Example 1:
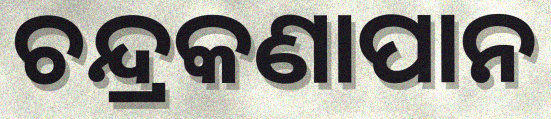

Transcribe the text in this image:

ଚନ୍ଦ୍ରକଣାପାନ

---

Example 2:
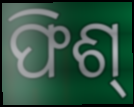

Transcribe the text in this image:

ଫିଶ୍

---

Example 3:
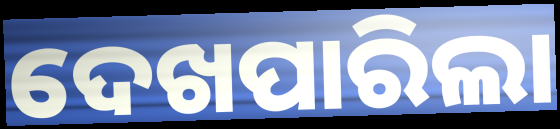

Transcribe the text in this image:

ଦେଖପାରିଲା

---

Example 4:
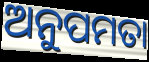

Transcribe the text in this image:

ଅନୁପମତା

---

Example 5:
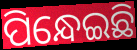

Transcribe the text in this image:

ପିନ୍ଧେଇଛି